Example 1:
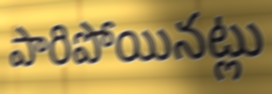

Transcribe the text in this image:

పారిపోయినట్లు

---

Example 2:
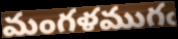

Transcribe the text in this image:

మంగళముగఁ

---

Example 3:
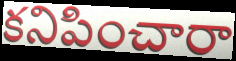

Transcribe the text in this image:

కనిపించారా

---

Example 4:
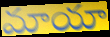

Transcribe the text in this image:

మాయా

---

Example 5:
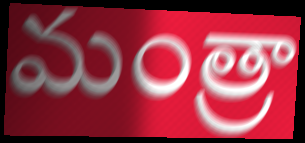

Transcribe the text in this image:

మంత్రా